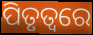
ପିତୃତ୍ୱରେ